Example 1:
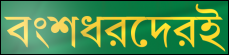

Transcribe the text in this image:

বংশধরদেরই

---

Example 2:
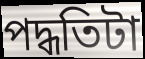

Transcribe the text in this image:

পদ্ধতিটা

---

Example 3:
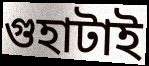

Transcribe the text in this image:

গুহাটাই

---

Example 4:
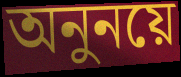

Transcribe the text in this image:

অনুনয়ে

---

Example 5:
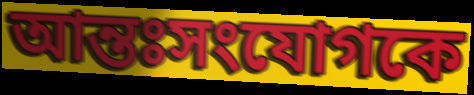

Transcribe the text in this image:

আন্তঃসংযোগকে